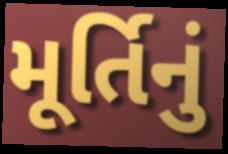
મૂર્તિનું